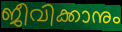
ജീവിക്കാനും